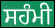
ਸਹੰਮੀ